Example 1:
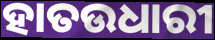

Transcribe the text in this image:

ହାତଉଧାରୀ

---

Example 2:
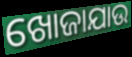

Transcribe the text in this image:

ଖୋଜାଯାଉ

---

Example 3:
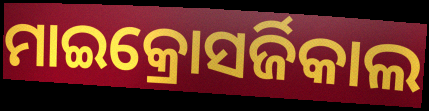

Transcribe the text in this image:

ମାଇକ୍ରୋସର୍ଜିକାଲ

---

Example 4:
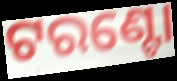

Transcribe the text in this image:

ଟରଣ୍ଟୋ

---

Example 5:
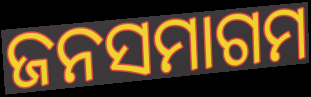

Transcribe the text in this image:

ଜନସମାଗମ